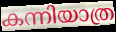
കന്നിയാത്ര